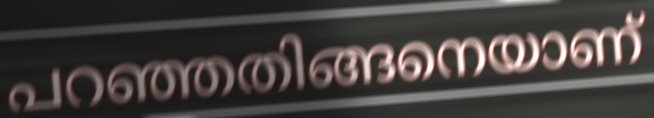
പറഞ്ഞതിങ്ങനെയാണ്